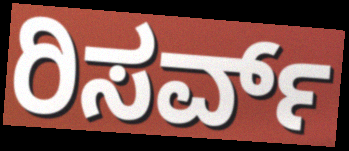
ರಿಸರ್ವ್